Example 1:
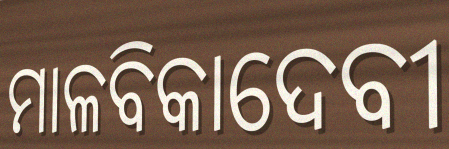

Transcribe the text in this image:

ମାଳବିକାଦେବୀ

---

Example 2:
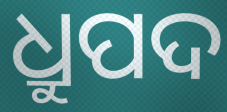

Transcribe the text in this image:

ଧ୍ରୁପଦ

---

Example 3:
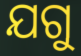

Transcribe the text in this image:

ଯଗୁ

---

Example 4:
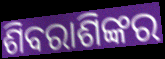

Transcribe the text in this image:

ଶିବରାଶିଙ୍କର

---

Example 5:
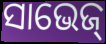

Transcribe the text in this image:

ସାଭେଜ୍